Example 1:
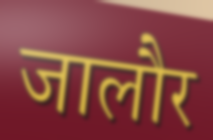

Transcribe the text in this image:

जालौर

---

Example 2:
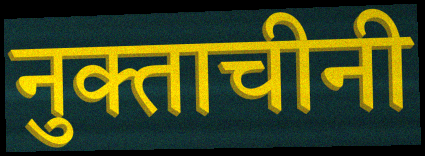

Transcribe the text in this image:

नुक्ताचीनी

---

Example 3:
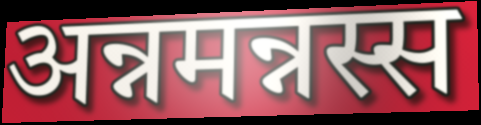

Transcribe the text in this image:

अन्नमन्नस्स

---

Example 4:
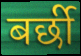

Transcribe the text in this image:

बर्छी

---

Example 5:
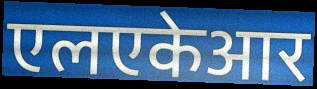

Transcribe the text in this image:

एलएकेआर